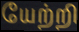
யேற்றி